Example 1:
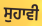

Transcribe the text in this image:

ਸੁਹਾਵੀ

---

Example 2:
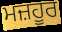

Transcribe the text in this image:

ਮਜ਼ਹੂਰ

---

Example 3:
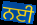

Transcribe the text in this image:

ਨਈ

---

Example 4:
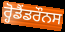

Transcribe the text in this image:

ਰ੍ਹੋਡੈਂਡਰੌਨਸ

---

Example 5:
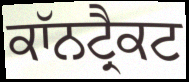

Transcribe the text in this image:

ਕਾੱਨਟ੍ਰੈਕਟ